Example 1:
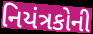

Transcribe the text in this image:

નિયંત્રકોની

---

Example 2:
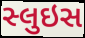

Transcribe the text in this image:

સ્લુઇસ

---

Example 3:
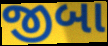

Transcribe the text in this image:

જીબા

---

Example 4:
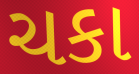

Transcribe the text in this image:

ચકા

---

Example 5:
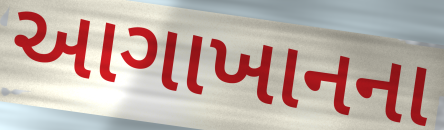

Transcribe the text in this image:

આગાખાનના